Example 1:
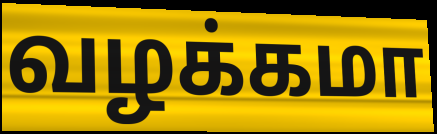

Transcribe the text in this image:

வழக்கமா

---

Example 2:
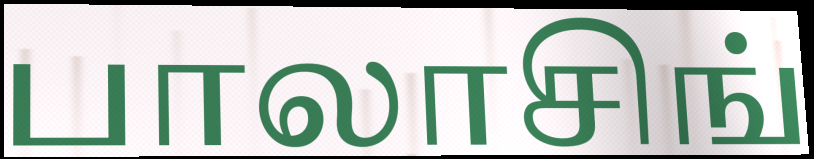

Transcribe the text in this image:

பாலாசிங்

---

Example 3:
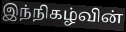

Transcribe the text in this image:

இந்நிகழ்வின்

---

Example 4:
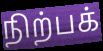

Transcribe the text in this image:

நிற்பக்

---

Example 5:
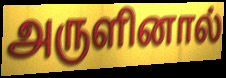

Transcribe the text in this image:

அருளினால்